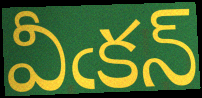
వీఁకన్